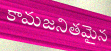
కామజనితమైన